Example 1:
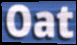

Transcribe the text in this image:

Oat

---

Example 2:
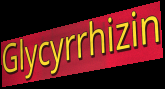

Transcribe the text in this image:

Glycyrrhizin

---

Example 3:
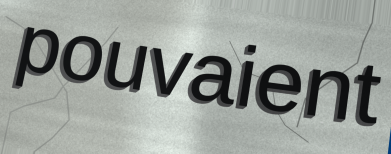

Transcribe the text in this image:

pouvaient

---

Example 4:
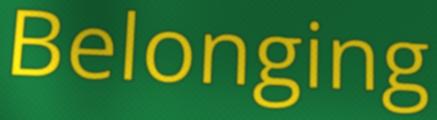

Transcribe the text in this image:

Belonging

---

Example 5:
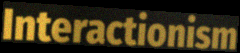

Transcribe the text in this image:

Interactionism